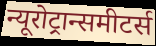
न्यूरोट्रान्समीटर्स